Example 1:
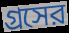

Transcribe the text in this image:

গ্রসের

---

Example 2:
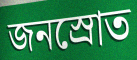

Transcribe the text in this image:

জনস্রোত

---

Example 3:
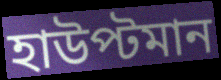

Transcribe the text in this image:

হাউপ্টমান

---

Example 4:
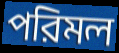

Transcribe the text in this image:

পরিমল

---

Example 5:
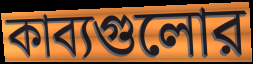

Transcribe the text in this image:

কাব্যগুলোর